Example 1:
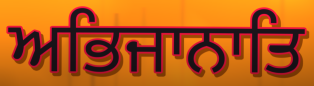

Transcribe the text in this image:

ਅਭਿਜਾਨਾਤਿ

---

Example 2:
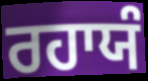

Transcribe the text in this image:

ਰਹਾਯੰ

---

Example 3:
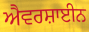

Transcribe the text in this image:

ਐਵਰਸ਼ਾਈਨ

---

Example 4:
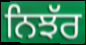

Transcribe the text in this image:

ਨਿਝੱਰ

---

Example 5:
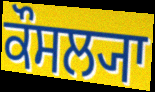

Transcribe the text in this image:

ਕੌਸਲ੍ਯਾ